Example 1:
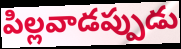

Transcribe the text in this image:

పిల్లవాడప్పుడు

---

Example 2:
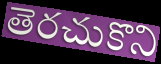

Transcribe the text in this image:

తెరచుకొని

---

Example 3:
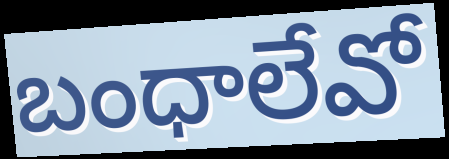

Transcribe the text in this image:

బంధాలేవో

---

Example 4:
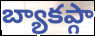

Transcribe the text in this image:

బ్యాకప్గా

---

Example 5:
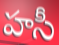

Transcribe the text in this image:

హసీ